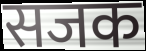
सजक